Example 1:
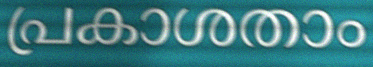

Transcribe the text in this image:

പ്രകാശതാം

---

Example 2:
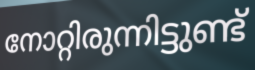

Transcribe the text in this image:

നോറ്റിരുന്നിട്ടുണ്ട്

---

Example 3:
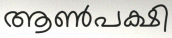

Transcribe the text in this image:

ആൺപക്ഷി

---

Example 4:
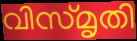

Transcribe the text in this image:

വിസ്മൃതി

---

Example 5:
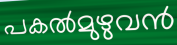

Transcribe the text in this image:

പകൽമുഴുവൻ